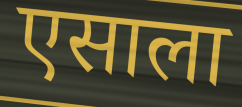
एसाला